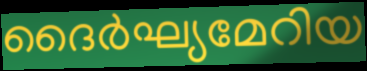
ദൈർഘ്യമേറിയ